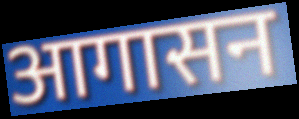
आगासन